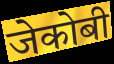
जेकोबी